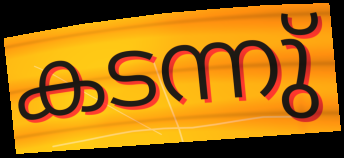
കടന്നു്